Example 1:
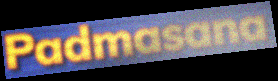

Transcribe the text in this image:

Padmasana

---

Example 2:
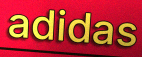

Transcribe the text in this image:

adidas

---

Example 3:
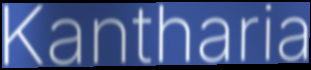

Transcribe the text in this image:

Kantharia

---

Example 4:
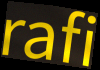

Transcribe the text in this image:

rafi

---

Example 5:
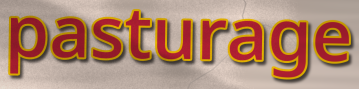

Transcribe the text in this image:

pasturage